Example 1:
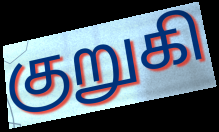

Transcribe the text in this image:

குறுகி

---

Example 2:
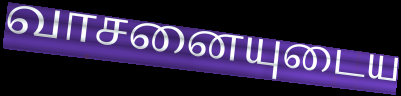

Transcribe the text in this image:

வாசனையுடைய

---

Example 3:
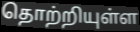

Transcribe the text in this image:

தொற்றியுள்ள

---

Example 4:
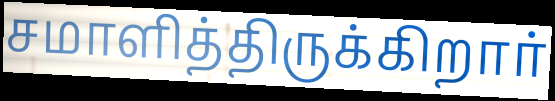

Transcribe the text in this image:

சமாளித்திருக்கிறார்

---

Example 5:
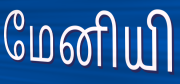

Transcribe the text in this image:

மேனியி